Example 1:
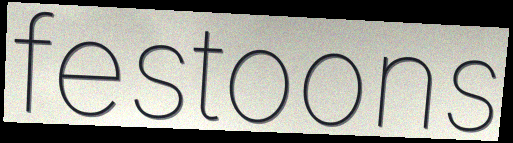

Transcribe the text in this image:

festoons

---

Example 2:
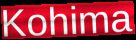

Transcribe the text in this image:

Kohima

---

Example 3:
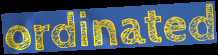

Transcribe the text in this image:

ordinated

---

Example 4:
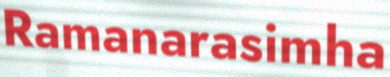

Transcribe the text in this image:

Ramanarasimha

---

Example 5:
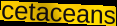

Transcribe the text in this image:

cetaceans